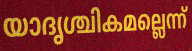
യാദൃശ്ചികമല്ലെന്ന്